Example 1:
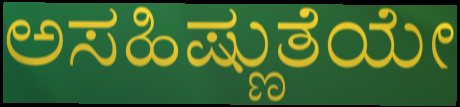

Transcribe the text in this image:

ಅಸಹಿಷ್ಣುತೆಯೇ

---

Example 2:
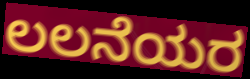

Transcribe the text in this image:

ಲಲನೆಯರ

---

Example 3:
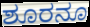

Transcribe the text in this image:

ಶೂರನೂ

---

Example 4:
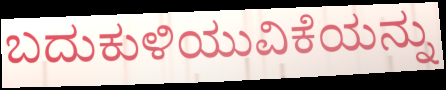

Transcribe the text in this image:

ಬದುಕುಳಿಯುವಿಕೆಯನ್ನು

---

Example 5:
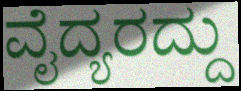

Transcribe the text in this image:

ವೈದ್ಯರದ್ದು